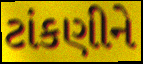
ટાંકણીને